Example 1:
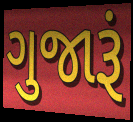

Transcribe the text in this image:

ગુજારૂં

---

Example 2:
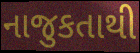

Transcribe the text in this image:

નાજુકતાથી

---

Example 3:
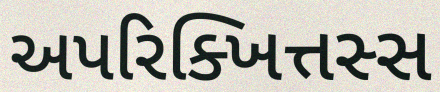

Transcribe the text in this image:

અપરિક્ખિત્તસ્સ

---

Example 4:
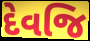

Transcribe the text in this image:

દેવજિ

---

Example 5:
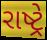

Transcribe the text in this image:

રાષ્ટ્રે